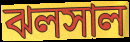
ঝলসাল